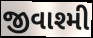
જીવાશ્મી